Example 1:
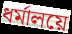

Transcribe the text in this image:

ধর্মালয়ে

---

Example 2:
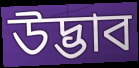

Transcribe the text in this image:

উদ্ভাব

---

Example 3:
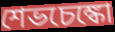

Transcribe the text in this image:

শেভচেঙ্কো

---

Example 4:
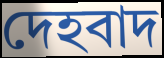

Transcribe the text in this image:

দেহবাদ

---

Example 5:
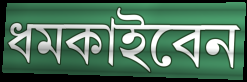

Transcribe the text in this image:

ধমকাইবেন